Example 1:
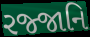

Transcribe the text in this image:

રજ્જાનિ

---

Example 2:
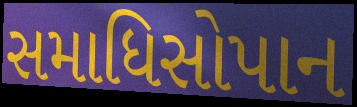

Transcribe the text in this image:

સમાધિસોપાન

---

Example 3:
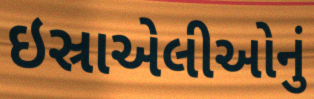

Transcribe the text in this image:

ઇસ્રાએલીઓનું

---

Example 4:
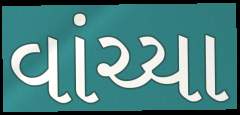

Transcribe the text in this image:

વાંચ્યા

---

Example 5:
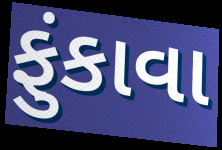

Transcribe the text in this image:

ફુંકાવા